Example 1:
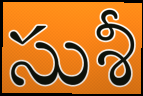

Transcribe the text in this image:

సుశీ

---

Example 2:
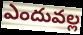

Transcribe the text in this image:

ఎందువల్ల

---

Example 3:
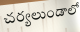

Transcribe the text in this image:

చర్యలుండాలో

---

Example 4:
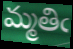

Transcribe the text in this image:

మ్మతిఁ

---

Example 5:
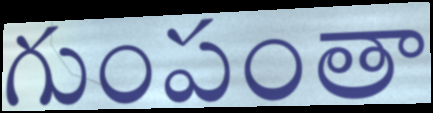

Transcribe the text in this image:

గుంపంతా